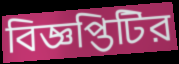
বিজ্ঞপ্তিটির